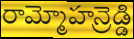
రామ్మోహన్రెడ్డి